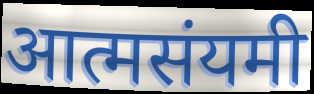
आत्मसंयमी